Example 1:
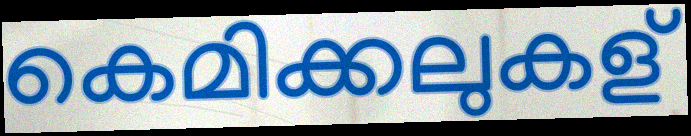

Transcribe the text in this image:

കെമിക്കലുകള്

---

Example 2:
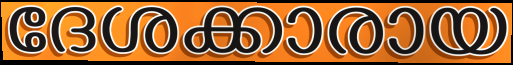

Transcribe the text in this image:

ദേശക്കാരായ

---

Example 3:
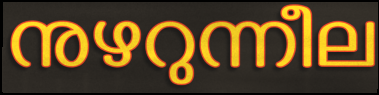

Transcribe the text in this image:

നുഴറുന്നീല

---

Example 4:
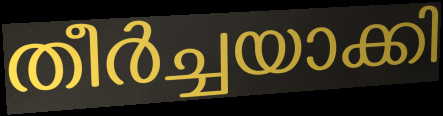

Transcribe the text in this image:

തീർച്ചയാക്കി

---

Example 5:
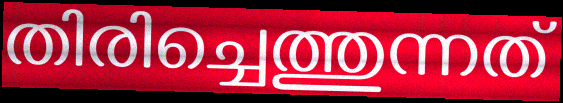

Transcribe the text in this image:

തിരിച്ചെത്തുന്നത്